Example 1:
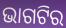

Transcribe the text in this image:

ଭାଗଟିର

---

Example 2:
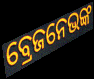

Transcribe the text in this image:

ବ୍ରେଜନେଭଙ୍କ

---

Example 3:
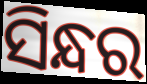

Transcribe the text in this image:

ସିନ୍ଧର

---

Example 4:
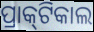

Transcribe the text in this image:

ପ୍ରାକ୍‌ଟିକାଲ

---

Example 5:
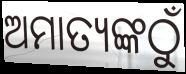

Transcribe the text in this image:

ଅମାତ୍ୟଙ୍କଠୁଁ